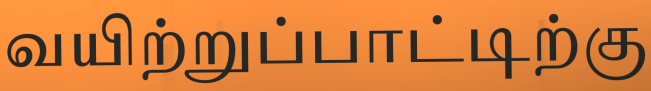
வயிற்றுப்பாட்டிற்கு